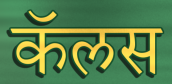
कॅलस